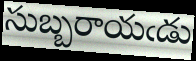
సుబ్బరాయఁడు